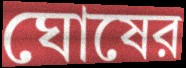
ঘোষের